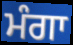
ਮੰਗਾ